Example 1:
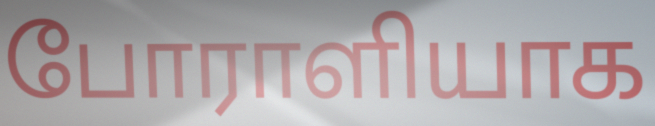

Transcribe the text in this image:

போராளியாக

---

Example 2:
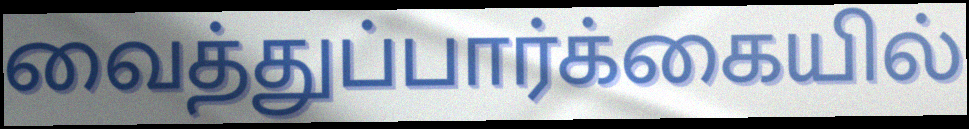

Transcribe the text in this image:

வைத்துப்பார்க்கையில்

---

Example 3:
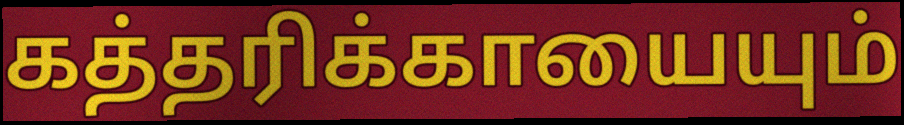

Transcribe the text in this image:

கத்தரிக்காயையும்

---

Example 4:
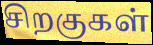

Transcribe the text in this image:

சிறகுகள்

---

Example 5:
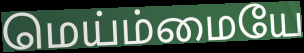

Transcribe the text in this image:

மெய்ம்மையே